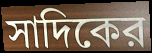
সাদিকের